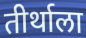
तीर्थाला